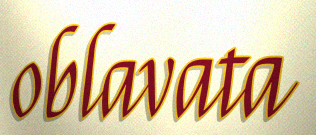
oblavata